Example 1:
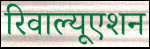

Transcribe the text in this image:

रिवाल्यूएशन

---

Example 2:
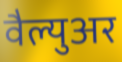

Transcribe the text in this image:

वैल्युअर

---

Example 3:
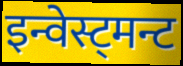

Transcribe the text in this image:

इन्वेस्ट्मन्ट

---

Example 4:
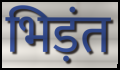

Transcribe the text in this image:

भिड़ंत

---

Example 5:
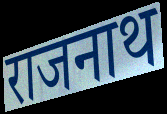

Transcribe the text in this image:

राजनाथ